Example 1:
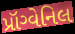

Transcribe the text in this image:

પ્રૉગ્વેનિલ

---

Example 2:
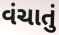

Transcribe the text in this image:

વંચાતું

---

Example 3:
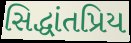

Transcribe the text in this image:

સિદ્ધાંતપ્રિય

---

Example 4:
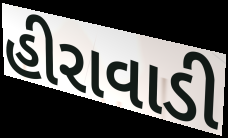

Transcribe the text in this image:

હીરાવાડી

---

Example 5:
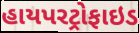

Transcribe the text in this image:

હાયપરટ્રોફાઇડ